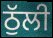
ਠੁੱਲੀ